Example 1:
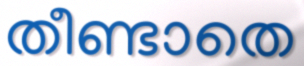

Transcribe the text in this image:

തീണ്ടാതെ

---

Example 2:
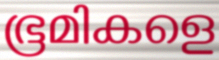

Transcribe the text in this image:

ഭൂമികളെ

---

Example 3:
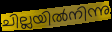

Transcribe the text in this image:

ചില്ലയിൽനിന്നു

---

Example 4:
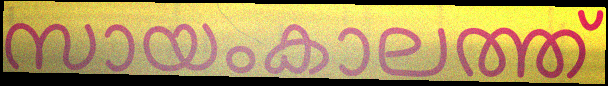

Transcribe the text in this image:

സായംകാലത്ത്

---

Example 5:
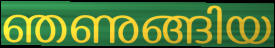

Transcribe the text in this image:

ഞണുങ്ങിയ